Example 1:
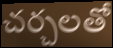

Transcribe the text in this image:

చర్చలతో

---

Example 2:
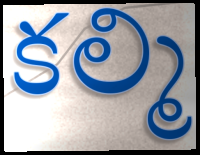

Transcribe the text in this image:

కల్మి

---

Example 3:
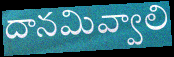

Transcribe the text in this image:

దానమివ్వాలి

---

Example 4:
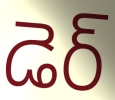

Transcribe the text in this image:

డెర్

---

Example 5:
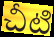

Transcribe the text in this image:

చీటి